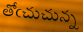
తోఁచుచున్న